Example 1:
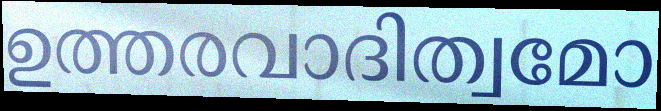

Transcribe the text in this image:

ഉത്തരവാദിത്വമോ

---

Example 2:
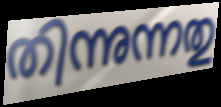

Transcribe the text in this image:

തിന്നുന്നതു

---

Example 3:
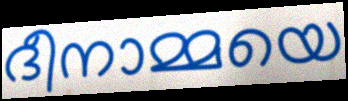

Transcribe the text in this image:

ദീനാമ്മയെ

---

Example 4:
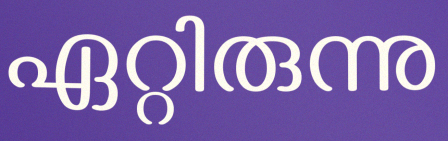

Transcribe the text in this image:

ഏറ്റിരുന്നു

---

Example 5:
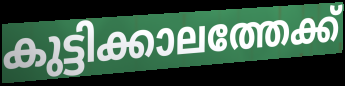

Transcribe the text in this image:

കുട്ടിക്കാലത്തേക്ക്